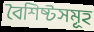
বৈশিষ্টসমূহ